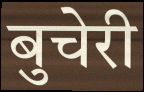
बुचेरी